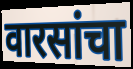
वारसांचा